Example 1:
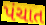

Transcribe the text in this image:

પંચાત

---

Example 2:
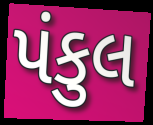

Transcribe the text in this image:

પંકુલ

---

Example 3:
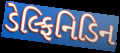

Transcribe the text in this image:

ડેલ્ફિનિડિન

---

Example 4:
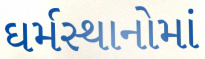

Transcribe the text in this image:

ઘર્મસ્થાનોમાં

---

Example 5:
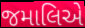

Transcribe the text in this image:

જમાલિએ